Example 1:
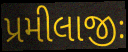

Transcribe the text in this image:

પ્રમીલાજીઃ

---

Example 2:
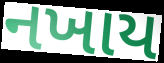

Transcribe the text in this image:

નખાય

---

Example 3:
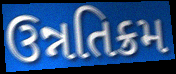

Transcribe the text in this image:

ઉન્નતિક્રમ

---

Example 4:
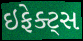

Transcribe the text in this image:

ઇફેક્ટ્સ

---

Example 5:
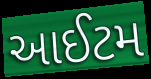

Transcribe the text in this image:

આઈટમ